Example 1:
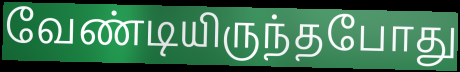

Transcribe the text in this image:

வேண்டியிருந்தபோது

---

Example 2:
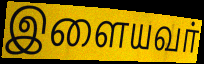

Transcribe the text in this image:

இளையவர்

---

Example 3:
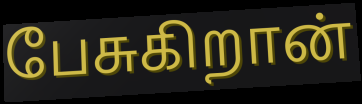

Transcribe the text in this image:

பேசுகிறான்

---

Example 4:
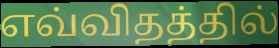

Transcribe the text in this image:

எவ்விதத்தில்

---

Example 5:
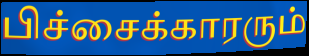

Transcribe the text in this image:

பிச்சைக்காரரும்